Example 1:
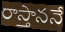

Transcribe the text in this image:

రాస్తాననే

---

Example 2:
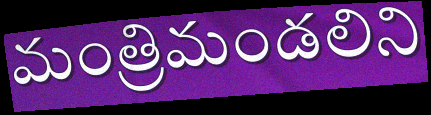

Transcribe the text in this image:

మంత్రిమండలిని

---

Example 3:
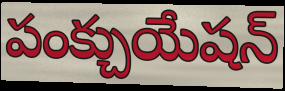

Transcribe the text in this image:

పంక్చుయేషన్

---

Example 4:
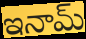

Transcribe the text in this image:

ఇనామ్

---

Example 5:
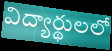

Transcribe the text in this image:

విద్యార్థులలో